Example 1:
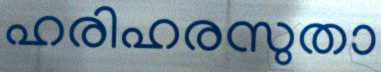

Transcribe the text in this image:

ഹരിഹരസുതാ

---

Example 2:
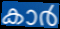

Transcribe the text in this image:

കാർ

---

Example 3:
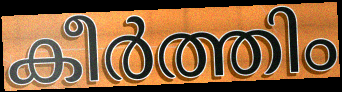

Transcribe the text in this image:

കീർത്തിം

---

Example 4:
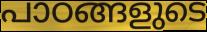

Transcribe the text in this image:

പാഠങ്ങളുടെ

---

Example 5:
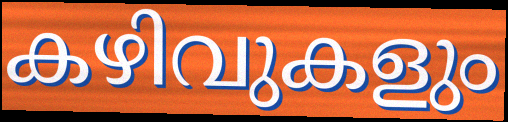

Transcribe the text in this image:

കഴിവുകളും